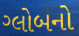
ગ્લોબનો